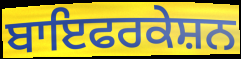
ਬਾਇਫਰਕੇਸ਼ਨ